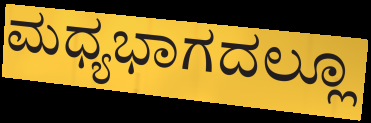
ಮಧ್ಯಭಾಗದಲ್ಲೂ